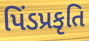
પિંડપ્રકૃતિ